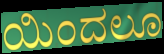
ಯಿಂದಲೂ